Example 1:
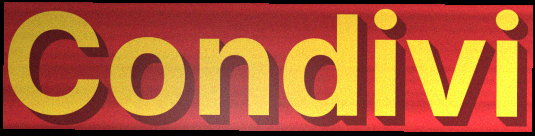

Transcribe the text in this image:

Condivi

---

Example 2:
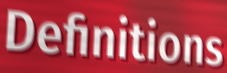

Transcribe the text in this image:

Definitions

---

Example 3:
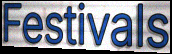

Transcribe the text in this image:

Festivals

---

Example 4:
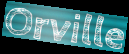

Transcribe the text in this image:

Orville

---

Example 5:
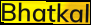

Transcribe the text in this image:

Bhatkal